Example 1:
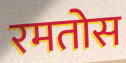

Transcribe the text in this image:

रमतोस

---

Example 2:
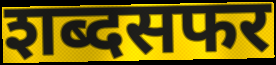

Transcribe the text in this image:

शब्दसफर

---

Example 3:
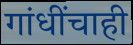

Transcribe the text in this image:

गांधींचाही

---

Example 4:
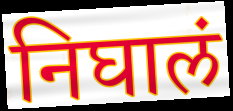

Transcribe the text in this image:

निघालं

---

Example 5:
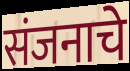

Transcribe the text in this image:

संजनाचे